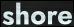
shore